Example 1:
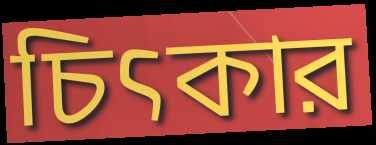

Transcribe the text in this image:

চিৎকার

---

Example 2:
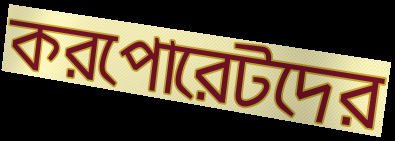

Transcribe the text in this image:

করপোরেটদের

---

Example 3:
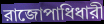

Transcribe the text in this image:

রাজোপাধিধারী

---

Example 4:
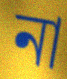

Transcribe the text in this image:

না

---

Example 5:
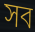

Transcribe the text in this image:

সব